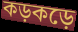
কড়কড়ে